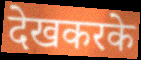
देखकरके